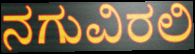
ನಗುವಿರಲಿ